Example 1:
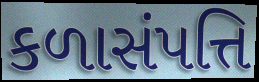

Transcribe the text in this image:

કળાસંપત્તિ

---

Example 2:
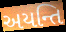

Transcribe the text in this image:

અયન્તિ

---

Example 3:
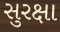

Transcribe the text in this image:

સુરક્ષા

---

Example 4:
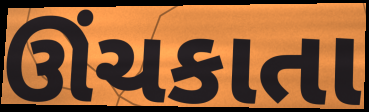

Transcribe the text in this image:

ઊંચકાતા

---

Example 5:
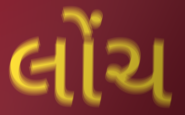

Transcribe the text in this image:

લોંચ